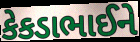
કેકડાભાઈને